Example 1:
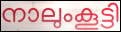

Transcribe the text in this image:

നാലുംകൂട്ടി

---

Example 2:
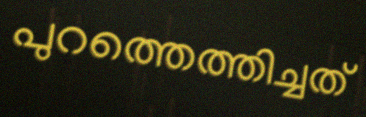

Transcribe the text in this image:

പുറത്തെത്തിച്ചത്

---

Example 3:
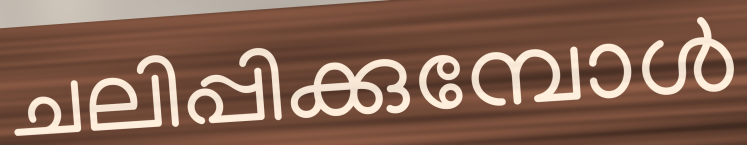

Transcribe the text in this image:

ചലിപ്പിക്കുമ്പോൾ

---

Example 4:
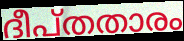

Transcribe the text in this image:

ദീപ്തതാരം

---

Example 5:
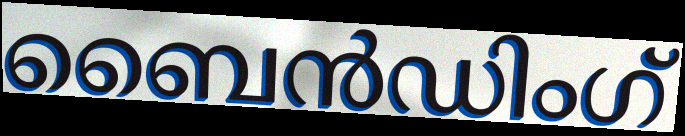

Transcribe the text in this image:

ബൈൻഡിംഗ്